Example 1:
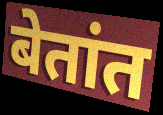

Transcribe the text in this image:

बेतांत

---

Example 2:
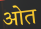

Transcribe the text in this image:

ओत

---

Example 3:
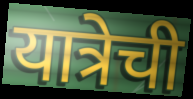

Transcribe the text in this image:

यात्रेची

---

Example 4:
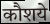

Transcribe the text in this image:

कौशये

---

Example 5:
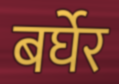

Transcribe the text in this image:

बर्घेर